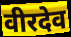
वीरदेव